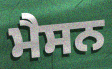
ਮੈਸਨ